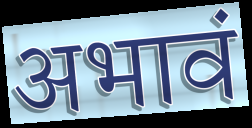
अभावं